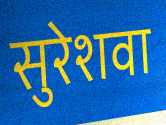
सुरेशवा